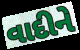
વાદીને